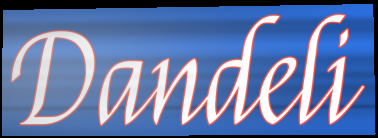
Dandeli